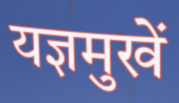
यज्ञमुखें